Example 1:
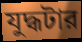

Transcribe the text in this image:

যুদ্ধটার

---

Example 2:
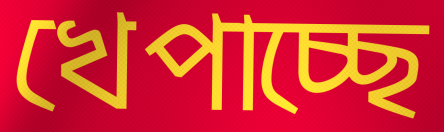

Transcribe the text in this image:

খেপাচ্ছে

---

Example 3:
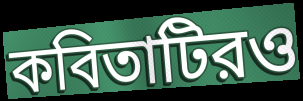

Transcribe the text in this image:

কবিতাটিরও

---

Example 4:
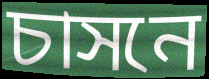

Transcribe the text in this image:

চাসনে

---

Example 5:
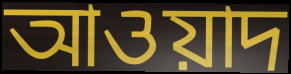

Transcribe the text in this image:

আওয়াদ